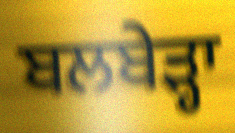
ਬਲਬੇੜ੍ਹਾ